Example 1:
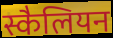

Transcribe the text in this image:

स्कैलियन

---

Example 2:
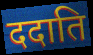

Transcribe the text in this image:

ददाति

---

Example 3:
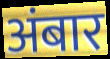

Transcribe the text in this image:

अंबार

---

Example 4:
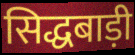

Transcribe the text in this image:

सिद्धबाड़ी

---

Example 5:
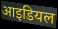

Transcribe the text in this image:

आइडियल